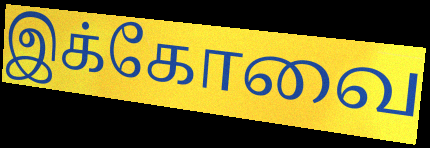
இக்கோவை